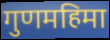
गुणमहिमा